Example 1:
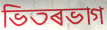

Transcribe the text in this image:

ভিতৰভাগ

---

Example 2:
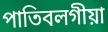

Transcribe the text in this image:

পাতিবলগীয়া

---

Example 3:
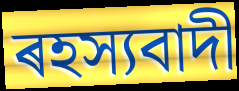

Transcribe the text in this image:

ৰহস্যবাদী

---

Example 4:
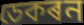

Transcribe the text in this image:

ডেকৰন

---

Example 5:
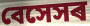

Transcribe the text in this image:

বেসেসৰ